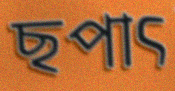
ছপাৎ